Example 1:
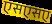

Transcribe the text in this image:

एसएसए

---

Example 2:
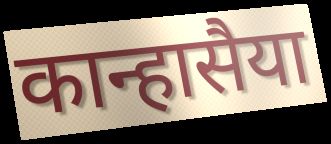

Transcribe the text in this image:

कान्हासैया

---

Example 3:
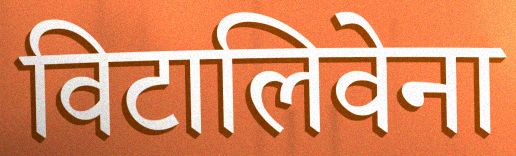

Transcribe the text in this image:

विटालिवेना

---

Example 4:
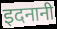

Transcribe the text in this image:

इदनानी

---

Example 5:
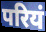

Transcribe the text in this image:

परियं